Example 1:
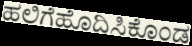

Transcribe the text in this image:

ಹಲಿಗೆಹೊದಿಸಿಕೊಂಡ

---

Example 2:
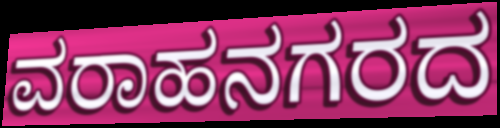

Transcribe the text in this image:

ವರಾಹನಗರದ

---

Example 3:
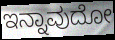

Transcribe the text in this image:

ಇನ್ನಾವುದೋ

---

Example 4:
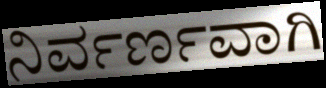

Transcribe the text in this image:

ನಿರ್ವರ್ಣವಾಗಿ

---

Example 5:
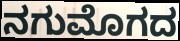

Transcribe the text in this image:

ನಗುಮೊಗದ